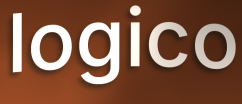
logico